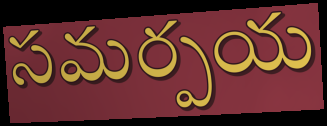
సమర్పయ